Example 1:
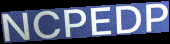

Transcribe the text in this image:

NCPEDP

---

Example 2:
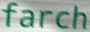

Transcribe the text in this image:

farch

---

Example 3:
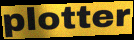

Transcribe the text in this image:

plotter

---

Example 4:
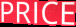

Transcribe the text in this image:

PRICE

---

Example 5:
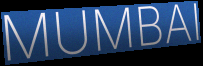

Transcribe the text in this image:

MUMBAI